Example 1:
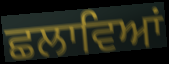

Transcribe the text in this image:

ਛਲਾਵਿਆਂ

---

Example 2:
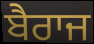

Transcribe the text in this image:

ਬੈਰਾਜ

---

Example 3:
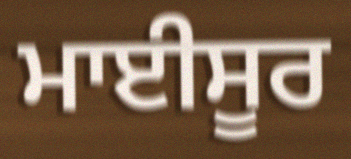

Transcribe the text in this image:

ਮਾਈਸੂਰ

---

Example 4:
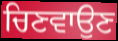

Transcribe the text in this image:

ਚਿਣਵਾਉਣ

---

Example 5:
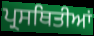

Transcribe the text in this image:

ਪ੍ਰਸਥਿਤੀਆਂ